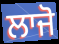
ਲਾਜੋ